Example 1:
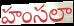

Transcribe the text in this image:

హంసలా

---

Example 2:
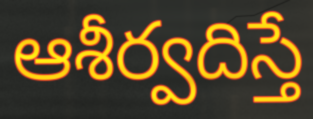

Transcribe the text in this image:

ఆశీర్వదిస్తే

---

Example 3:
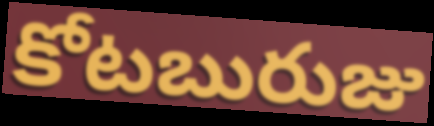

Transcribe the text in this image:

కోటబురుజు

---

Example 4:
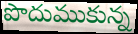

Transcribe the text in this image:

పొదుముకున్న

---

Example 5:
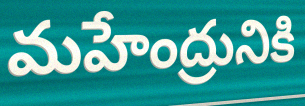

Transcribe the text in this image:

మహేంద్రునికి